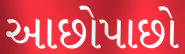
આછોપાછો